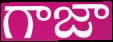
గాజా